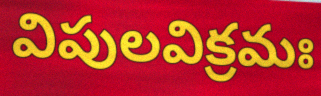
విపులవిక్రమః